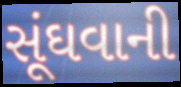
સૂંઘવાની